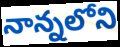
నాన్నలోని